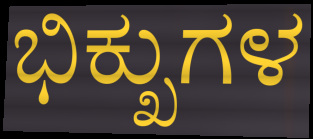
ಭಿಕ್ಖುಗಳ